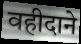
वहीदाने